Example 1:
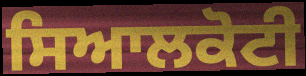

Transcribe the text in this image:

ਸਿਆਲਕੋਟੀ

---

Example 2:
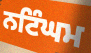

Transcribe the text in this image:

ਨਟਿੰਘਮ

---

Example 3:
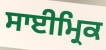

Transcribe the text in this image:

ਸਾਈਮ੍ਰਿਕ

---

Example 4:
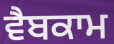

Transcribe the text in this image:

ਵੈਬਕਾਮ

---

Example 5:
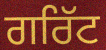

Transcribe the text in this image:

ਗਰਿੱਟ